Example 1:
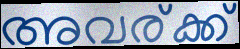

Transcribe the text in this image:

അവര്ക്ക്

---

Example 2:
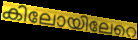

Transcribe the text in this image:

കിലോയിലേറെ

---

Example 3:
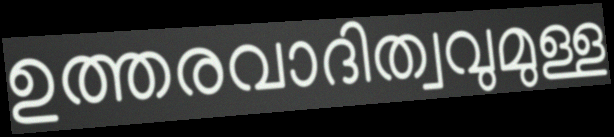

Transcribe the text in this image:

ഉത്തരവാദിത്വവുമുള്ള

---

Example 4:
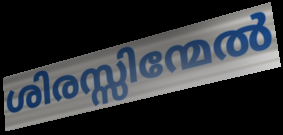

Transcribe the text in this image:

ശിരസ്സിന്മേൽ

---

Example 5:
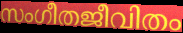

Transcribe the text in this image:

സംഗീതജീവിതം